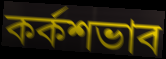
কর্কশভাব